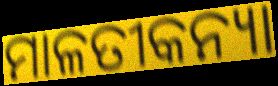
ମାଳତୀକନ୍ୟା